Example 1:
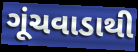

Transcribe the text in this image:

ગૂંચવાડાથી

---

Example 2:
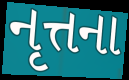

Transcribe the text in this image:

નૃત્તના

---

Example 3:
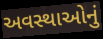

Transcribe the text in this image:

અવસ્થાઓનું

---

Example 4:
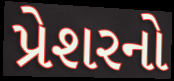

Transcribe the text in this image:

પ્રેશરનો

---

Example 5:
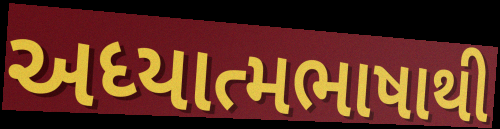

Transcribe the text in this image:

અધ્યાત્મભાષાથી